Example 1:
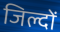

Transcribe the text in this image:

जिल्दों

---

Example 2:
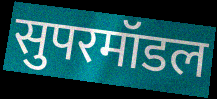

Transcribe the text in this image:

सुपरमॉडल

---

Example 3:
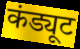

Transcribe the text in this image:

कंड्यूट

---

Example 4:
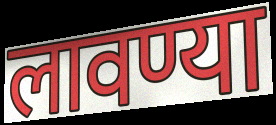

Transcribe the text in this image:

लावण्या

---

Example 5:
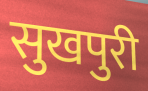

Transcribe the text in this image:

सुखपुरी